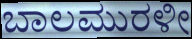
ಬಾಲಮುರಳೀ